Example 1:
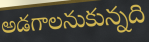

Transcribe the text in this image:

అడగాలనుకున్నది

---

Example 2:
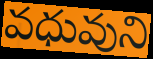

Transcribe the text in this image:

వధువుని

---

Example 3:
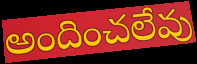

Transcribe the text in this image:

అందించలేవు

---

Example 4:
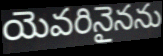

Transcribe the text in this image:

యెవరినైనను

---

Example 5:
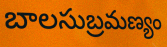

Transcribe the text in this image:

బాలసుబ్రమణ్యం